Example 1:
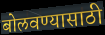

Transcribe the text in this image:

बोलवण्यासाठी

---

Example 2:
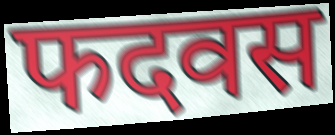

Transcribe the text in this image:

फदवस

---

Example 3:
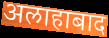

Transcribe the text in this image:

अलाहाबाद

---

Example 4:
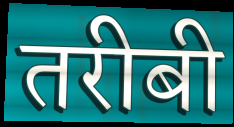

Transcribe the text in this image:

तरीबी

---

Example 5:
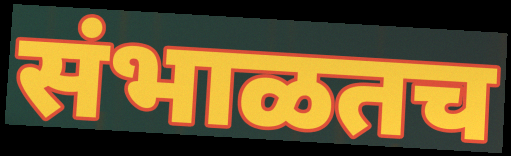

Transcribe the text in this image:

संभाळतच